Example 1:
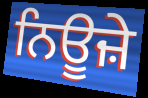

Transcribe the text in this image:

ਨਿਊਜ਼ੇ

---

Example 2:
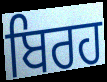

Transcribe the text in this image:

ਬਿਰਹ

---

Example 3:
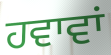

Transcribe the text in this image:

ਹਵਾਵਾਂ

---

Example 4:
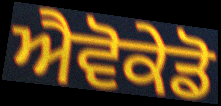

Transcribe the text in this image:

ਐਵੋਕੇਡੋ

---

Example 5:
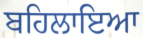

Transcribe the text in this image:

ਬਹਿਲਾਇਆ